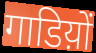
गाडिय़ों